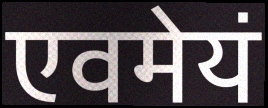
एवमेयं